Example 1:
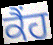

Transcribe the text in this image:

ਕੈਂਹ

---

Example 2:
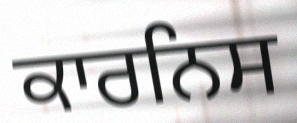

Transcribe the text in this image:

ਕਾਰਨਿਸ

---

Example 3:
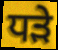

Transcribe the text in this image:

ਧੜੇ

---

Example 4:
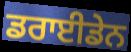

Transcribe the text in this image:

ਡਰਾਈਡੇਨ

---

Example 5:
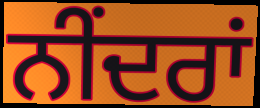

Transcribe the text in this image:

ਨੀਂਦਰਾਂ